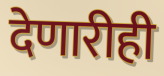
देणारीही